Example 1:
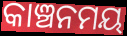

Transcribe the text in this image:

କାଞ୍ଚନମୟ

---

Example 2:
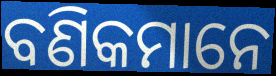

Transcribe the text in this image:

ବଣିକମାନେ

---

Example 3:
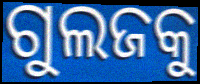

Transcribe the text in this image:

ଗୁଲଜକୁ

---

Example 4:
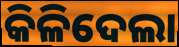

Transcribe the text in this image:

କିଳିଦେଲା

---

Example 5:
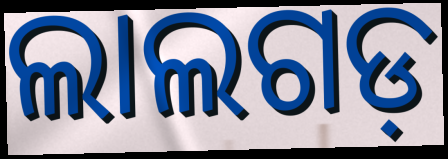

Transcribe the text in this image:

ଲାଲଗଡ଼